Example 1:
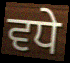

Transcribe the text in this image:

ਵਧੇ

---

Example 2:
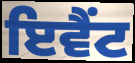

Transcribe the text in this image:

ਇਵੈਂਟ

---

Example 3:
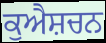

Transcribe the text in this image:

ਕੁਐਸ਼ਚਨ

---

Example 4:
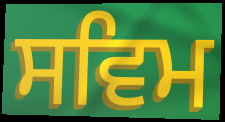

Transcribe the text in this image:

ਸਵਿਮ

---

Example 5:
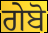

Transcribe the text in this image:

ਗੇਬੋ